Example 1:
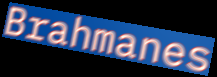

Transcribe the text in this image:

Brahmanes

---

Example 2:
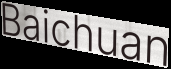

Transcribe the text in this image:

Baichuan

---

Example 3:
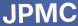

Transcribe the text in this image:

JPMC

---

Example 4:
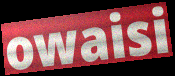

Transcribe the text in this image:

owaisi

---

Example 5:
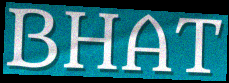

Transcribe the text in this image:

BHAT